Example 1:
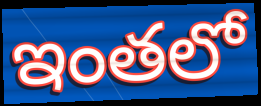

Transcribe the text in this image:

ఇంతలో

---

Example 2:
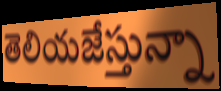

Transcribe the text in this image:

తెలియజేస్తున్నా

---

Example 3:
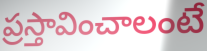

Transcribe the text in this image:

ప్రస్తావించాలంటే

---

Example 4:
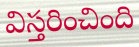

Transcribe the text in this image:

విస్తరించింది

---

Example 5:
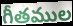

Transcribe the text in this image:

గీతముల